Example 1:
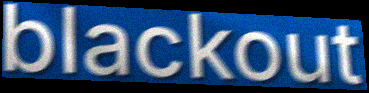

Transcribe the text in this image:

blackout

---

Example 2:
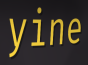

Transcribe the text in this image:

yine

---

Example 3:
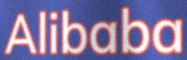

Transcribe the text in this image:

Alibaba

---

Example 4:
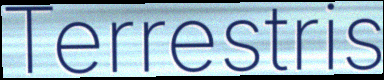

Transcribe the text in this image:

Terrestris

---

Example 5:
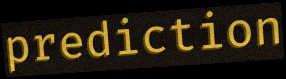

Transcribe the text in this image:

prediction